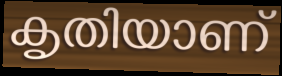
കൃതിയാണ്